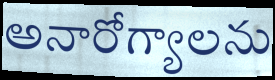
అనారోగ్యాలను